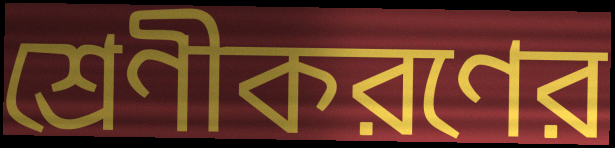
শ্রেণীকরণের